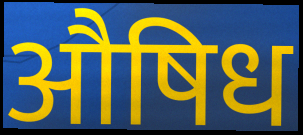
औषिध